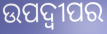
ଉପଦ୍ୱୀପର